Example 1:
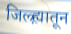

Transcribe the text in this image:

जिल्ह्य़ातून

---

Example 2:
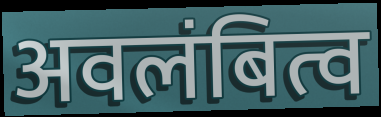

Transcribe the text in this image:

अवलंबित्व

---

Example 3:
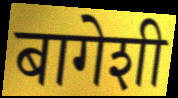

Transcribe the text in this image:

बागेशी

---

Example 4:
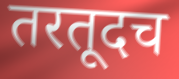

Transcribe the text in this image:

तरतूदच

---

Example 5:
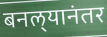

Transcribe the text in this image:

बनल्यानंतर